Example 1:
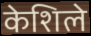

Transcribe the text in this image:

केशिले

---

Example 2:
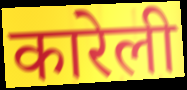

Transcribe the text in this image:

कारेली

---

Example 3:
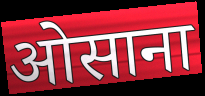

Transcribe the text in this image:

ओसाना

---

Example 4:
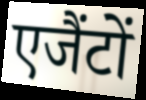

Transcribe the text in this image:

एजैंटों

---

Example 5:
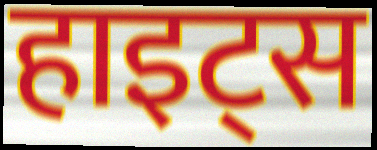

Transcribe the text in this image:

हाइट्स